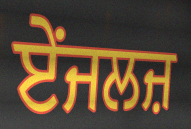
ਏਂਜਲਜ਼